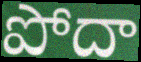
పోదా